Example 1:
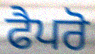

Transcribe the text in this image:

ਫੈਪਰੋ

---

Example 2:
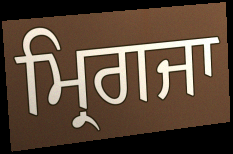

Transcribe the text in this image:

ਮ੍ਰਿਗਜਾ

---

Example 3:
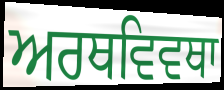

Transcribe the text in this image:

ਅਰਥਵਿਵਥਾ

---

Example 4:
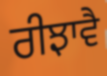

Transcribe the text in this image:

ਰੀਝਾਵੈ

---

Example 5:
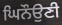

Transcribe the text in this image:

ਘਿਨੌਉਣੀ